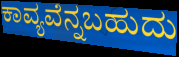
ಕಾವ್ಯವೆನ್ನಬಹುದು